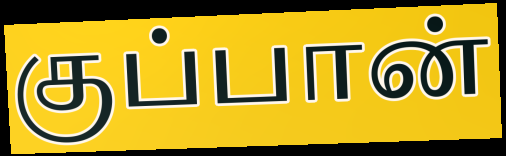
குப்பான்